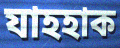
যাহহাক